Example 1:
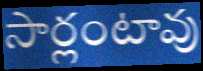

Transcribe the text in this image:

సార్లంటావు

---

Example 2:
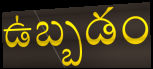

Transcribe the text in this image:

ఉబ్బడం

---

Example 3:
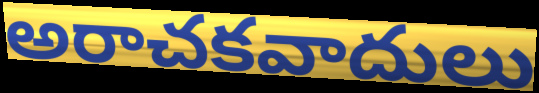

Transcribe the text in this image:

అరాచకవాదులు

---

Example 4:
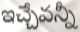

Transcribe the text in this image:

ఇచ్చేవన్నీ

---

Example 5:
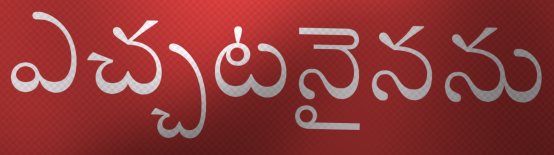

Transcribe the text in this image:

ఎచ్చటనైనను